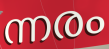
ന്നരം